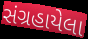
સંગ્રહાયેલા